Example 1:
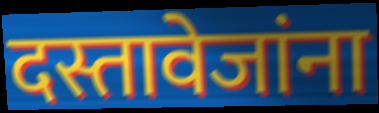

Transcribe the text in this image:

दस्तावेजांना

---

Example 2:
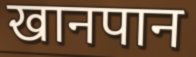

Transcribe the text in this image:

खानपान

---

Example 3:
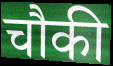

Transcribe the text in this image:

चौकी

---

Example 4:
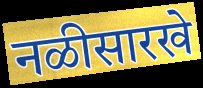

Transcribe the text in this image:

नळीसारखे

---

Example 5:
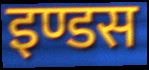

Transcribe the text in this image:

इण्डस